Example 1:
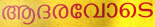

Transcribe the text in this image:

ആദരവോടെ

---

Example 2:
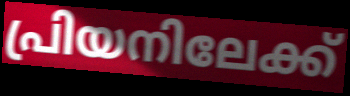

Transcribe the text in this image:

പ്രിയനിലേക്ക്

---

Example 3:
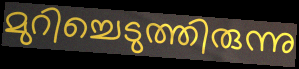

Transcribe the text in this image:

മുറിച്ചെടുത്തിരുന്നു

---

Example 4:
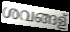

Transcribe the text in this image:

ശവങ്ങള്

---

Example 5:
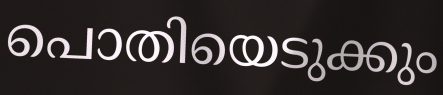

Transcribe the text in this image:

പൊതിയെടുക്കും